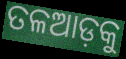
ତଳଆଡ଼କୁ